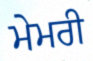
ਮੇਮਰੀ